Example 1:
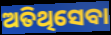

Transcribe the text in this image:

ଅତିଥିସେବା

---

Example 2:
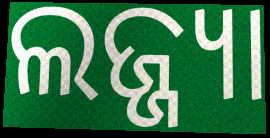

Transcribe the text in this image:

ଲଜ୍ଜ୍ୟା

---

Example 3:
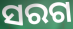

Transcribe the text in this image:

ସରଗ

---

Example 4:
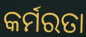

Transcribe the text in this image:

କର୍ମରତା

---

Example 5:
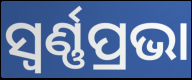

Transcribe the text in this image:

ସ୍ୱର୍ଣ୍ଣପ୍ରଭା